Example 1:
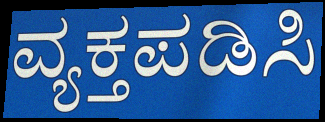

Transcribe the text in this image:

ವ್ಯಕ್ತಪಡಿಸಿ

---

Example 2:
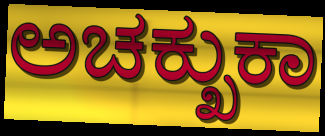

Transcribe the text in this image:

ಅಚಕ್ಖುಕಾ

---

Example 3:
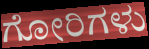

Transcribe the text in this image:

ಗೋರಿಗಳು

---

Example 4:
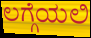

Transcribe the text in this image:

ಲಗ್ಗೆಯಲಿ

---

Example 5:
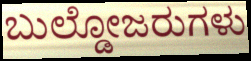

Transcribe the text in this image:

ಬುಲ್ಡೋಜರುಗಳು